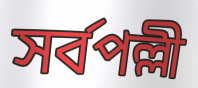
সৰ্বপল্লী